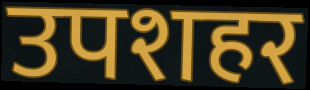
उपशहर